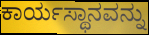
ಕಾರ್ಯಸ್ಥಾನವನ್ನು